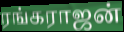
ரங்கராஜன்